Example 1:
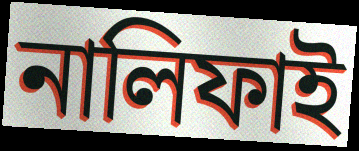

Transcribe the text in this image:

নালিফাই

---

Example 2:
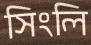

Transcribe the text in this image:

সিংলি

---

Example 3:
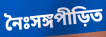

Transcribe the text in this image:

নৈঃসঙ্গপীড়িত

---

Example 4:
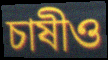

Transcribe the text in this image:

চাষীও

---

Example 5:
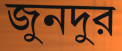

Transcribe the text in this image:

জুনদুর